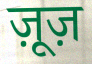
ज़ूज़